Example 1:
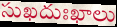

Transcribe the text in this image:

సుఖదుఃఖాలు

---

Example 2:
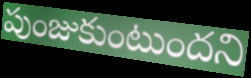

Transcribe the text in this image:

పుంజుకుంటుందని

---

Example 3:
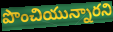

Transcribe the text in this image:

పొంచియున్నారని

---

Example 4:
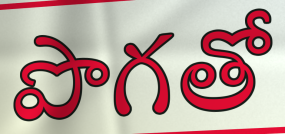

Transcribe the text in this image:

పొగతో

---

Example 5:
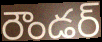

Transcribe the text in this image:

రౌండర్